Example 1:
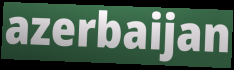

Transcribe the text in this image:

azerbaijan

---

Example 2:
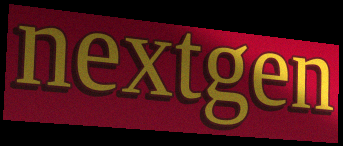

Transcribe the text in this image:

nextgen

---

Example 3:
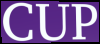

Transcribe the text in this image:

CUP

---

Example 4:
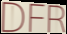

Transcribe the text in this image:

DFR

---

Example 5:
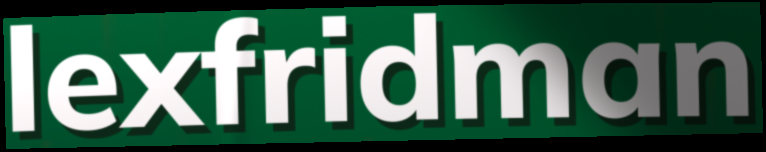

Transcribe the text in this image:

lexfridman